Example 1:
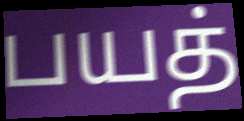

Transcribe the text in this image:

பயத்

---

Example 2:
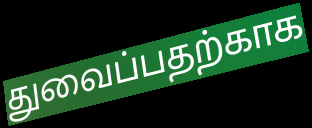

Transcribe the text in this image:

துவைப்பதற்காக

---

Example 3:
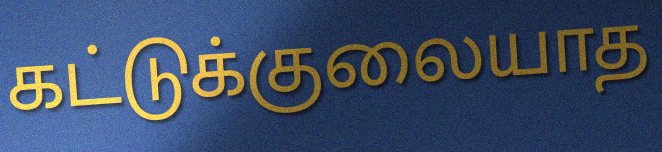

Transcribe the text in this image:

கட்டுக்குலையாத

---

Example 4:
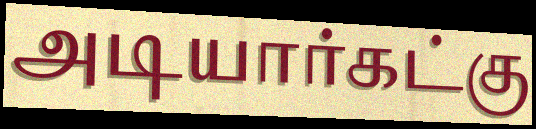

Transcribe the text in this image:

அடியார்கட்கு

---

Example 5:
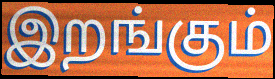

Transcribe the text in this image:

இறங்கும்